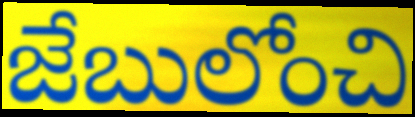
జేబులోంచి